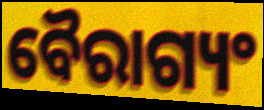
ବୈରାଗ୍ୟଂ